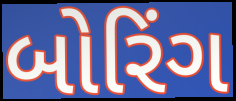
બોરિંગ